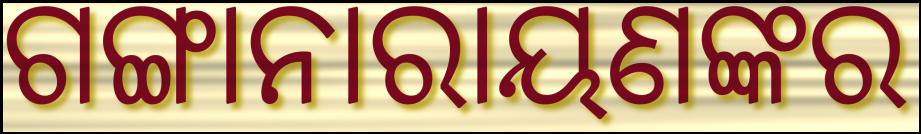
ଗଙ୍ଗାନାରାୟଣଙ୍କର